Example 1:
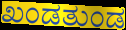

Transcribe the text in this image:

ಖಂಡತುಂಡ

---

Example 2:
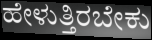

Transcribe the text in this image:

ಹೇಳುತ್ತಿರಬೇಕು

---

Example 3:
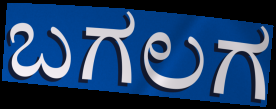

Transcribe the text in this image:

ಬಗಲಗ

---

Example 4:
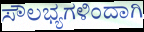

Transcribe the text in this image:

ಸೌಲಭ್ಯಗಳಿಂದಾಗಿ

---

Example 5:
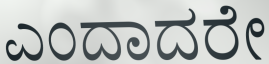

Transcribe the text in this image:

ಎಂದಾದರೇ